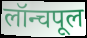
लॉन्चपूल